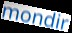
mondir